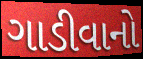
ગાડીવાનો